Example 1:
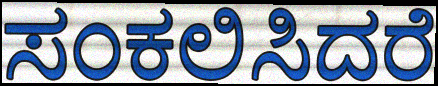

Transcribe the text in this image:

ಸಂಕಲಿಸಿದರೆ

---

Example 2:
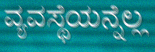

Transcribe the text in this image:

ವ್ಯವಸ್ಥೆಯನ್ನೆಲ್ಲ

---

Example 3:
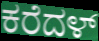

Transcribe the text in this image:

ಕರೆದಳ್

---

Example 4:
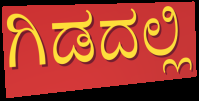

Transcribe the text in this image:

ಗಿಡದಲ್ಲಿ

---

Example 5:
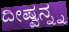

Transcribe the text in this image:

ದೀಷ್ವನ್ನ್ನ